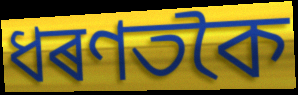
ধৰণতকৈ